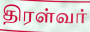
திரள்வர்